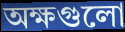
অক্ষগুলো